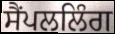
ਸੈਂਪਲਲਿੰਗ